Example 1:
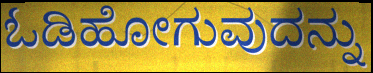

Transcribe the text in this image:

ಓಡಿಹೋಗುವುದನ್ನು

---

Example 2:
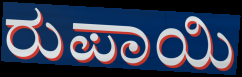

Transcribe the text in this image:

ರುಪಾಯಿ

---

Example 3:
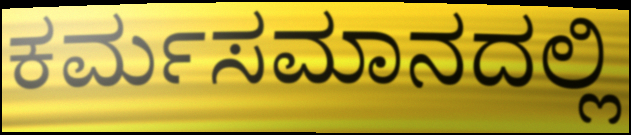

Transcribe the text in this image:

ಕರ್ಮಸಮಾನದಲ್ಲಿ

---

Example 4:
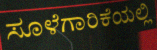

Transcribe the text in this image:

ಸೂಳೆಗಾರಿಕೆಯಲ್ಲಿ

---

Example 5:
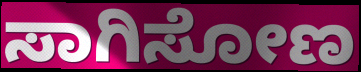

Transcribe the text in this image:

ಸಾಗಿಸೋಣ